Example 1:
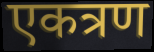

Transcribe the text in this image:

एकत्रण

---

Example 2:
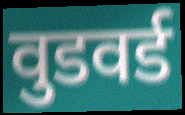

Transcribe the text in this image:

वुडवर्ड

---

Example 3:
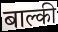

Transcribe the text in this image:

बाल्‍की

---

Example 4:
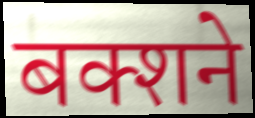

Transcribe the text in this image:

बक्शने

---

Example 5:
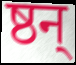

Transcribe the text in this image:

ष्ठन्